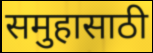
समुहासाठी